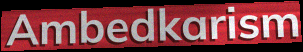
Ambedkarism